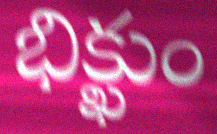
భిక్ఖుం